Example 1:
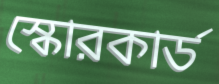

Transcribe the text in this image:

স্কোরকার্ড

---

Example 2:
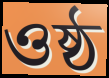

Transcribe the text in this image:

ওষ্ঠ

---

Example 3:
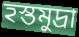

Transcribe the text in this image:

হস্তমুদ্রা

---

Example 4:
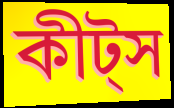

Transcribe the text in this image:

কীট্স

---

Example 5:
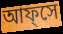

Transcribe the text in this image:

আফ্সে